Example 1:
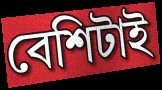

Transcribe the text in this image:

বেশিটাই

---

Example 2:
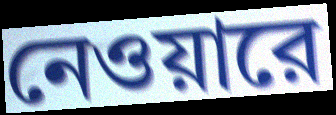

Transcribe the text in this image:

নেওয়ারে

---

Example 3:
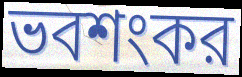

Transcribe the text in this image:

ভবশংকর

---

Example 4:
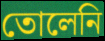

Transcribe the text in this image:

তোলেনি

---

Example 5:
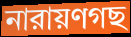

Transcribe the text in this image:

নারায়ণগছ